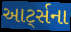
આર્ટ્સના